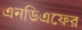
এনডিএফের